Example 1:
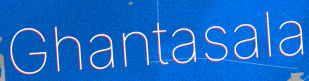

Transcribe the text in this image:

Ghantasala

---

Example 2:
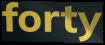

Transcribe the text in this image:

forty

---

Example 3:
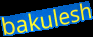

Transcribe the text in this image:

bakulesh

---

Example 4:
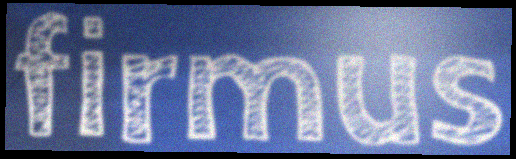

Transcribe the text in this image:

firmus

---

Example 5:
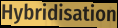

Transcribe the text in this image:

Hybridisation